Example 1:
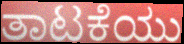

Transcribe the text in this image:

ತಾಟಕೆಯು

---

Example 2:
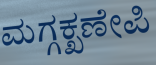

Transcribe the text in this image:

ಮಗ್ಗಕ್ಖಣೇಪಿ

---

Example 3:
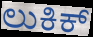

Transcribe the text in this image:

ಲುಕಿಕ್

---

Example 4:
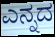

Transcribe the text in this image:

ಎನ್ನದ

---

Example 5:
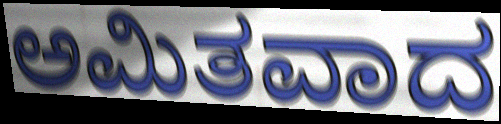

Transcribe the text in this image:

ಅಮಿತವಾದ